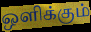
ஒளிக்கும்